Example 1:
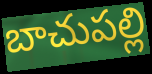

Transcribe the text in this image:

బాచుపల్లి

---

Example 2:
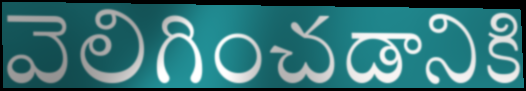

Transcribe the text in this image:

వెలిగించడానికి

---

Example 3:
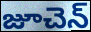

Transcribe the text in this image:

జూచెన్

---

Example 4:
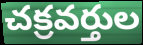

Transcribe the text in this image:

చక్రవర్తుల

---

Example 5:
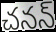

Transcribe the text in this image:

చనన్